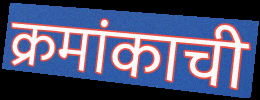
क्रमांकाची